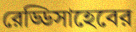
রেড্ডিসাহেবের